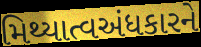
મિથ્યાત્વઅંધકારને